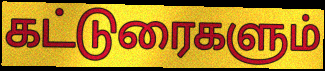
கட்டுரைகளும்